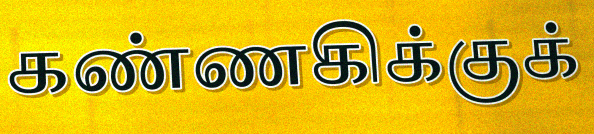
கண்ணகிக்குக்